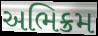
અભિક્રમ